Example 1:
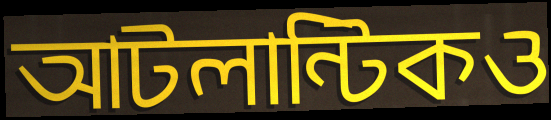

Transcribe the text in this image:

আটলান্টিকও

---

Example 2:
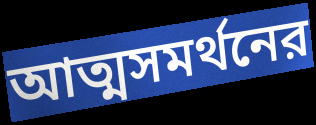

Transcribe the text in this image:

আত্মসমর্থনের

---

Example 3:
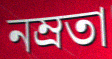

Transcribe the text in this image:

নম্রতা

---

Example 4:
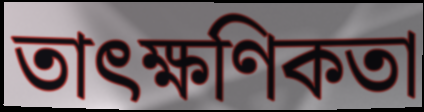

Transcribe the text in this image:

তাৎক্ষণিকতা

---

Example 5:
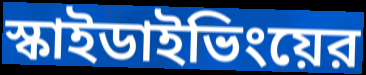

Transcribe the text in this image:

স্কাইডাইভিংয়ের